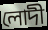
লোদী